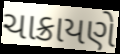
ચાક્રાયણે